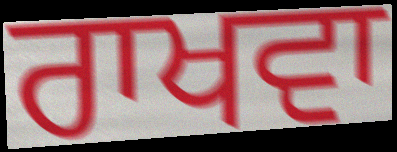
ਰਾਖਵਾ